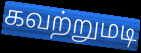
கவற்றுமடி